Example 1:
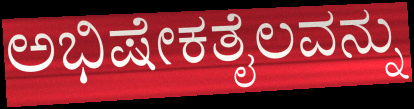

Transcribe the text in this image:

ಅಭಿಷೇಕತೈಲವನ್ನು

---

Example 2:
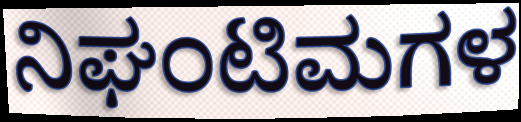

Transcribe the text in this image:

ನಿಘಂಟಿಮಗಳ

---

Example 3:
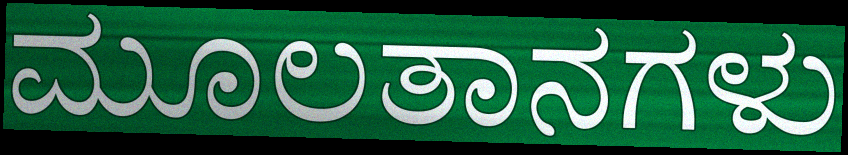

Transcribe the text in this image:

ಮೂಲತಾನಗಳು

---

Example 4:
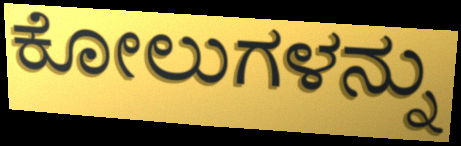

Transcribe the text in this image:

ಕೋಲುಗಳನ್ನು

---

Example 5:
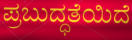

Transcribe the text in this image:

ಪ್ರಬುದ್ಧತೆಯಿದೆ